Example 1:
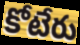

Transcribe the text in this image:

కోటేరు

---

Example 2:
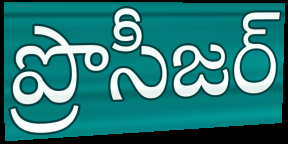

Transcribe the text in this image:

ప్రొసీజర్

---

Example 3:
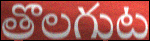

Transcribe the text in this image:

తొలగుట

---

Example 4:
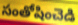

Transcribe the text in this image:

సంతోషించెడి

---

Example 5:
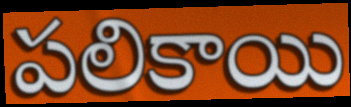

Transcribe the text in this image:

పలికాయి